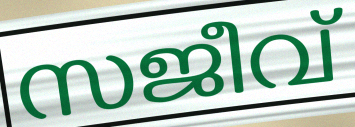
സജീവ്